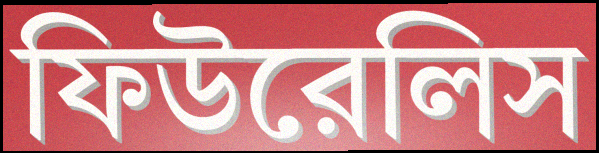
ফিউরেলিস